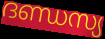
ദണ്ഡസ്യ